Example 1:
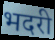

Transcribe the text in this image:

भदरी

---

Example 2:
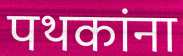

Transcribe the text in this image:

पथकांना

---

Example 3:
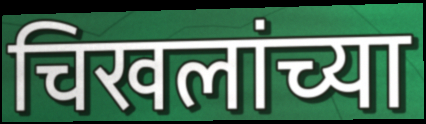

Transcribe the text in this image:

चिखलांच्या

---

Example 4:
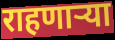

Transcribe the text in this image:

राहणाऱ्या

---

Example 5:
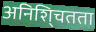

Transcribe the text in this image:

अनिश्‍चितता